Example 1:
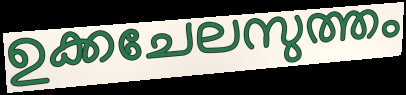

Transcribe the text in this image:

ഉക്കചേലസുത്തം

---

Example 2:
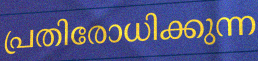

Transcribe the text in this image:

പ്രതിരോധിക്കുന്ന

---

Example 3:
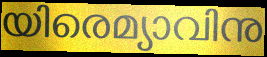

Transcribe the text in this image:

യിരെമ്യാവിനു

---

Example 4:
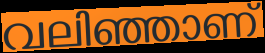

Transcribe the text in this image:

വലിഞ്ഞാണ്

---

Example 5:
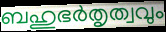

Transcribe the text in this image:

ബഹുഭർതൃത്വവും